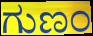
ಗುಣಂ